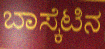
ಬಾಸ್ಕೆಟಿನ